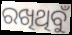
ରଖିଥିବୁଁ